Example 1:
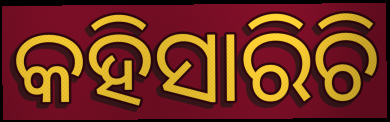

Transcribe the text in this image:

କହିସାରିଚି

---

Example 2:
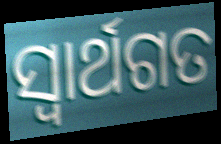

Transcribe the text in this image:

ସ୍ୱାର୍ଥଗତ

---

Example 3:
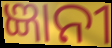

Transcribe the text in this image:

ଜ୍ଞାନୀ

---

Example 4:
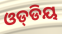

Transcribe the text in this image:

ଓଡ୍‌ଡିୟ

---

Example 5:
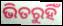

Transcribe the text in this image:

ଭିତରୁହିଁ